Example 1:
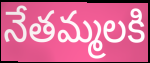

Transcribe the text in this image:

నేతమ్మలకి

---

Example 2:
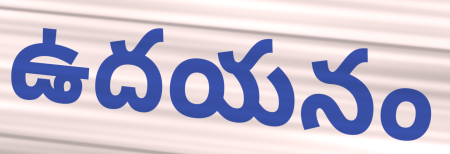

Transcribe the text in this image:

ఉదయనం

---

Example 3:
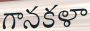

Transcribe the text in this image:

గానకళా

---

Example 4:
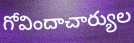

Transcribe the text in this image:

గోవిందాచార్యుల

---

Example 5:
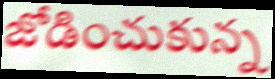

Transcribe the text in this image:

జోడించుకున్న